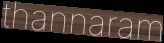
thannaram